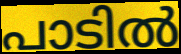
പാടിൽ